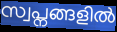
സ്വപ്നങ്ങളിൽ